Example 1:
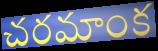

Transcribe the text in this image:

చరమాంక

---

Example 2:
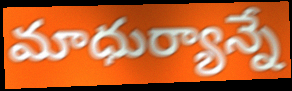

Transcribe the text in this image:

మాధుర్యాన్నే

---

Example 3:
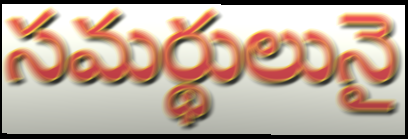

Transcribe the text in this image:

సమర్థులునై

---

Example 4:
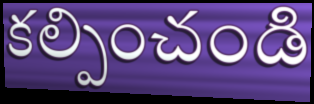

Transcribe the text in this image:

కల్పించండి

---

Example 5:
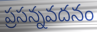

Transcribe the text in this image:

ప్రసన్నవదనం